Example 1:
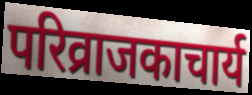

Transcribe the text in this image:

परिव्राजकाचार्य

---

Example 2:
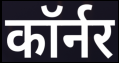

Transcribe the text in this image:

कॉर्नर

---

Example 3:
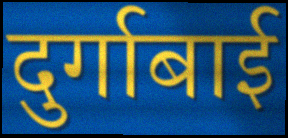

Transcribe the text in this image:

दुर्गाबाई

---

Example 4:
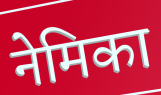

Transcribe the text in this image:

नेमिका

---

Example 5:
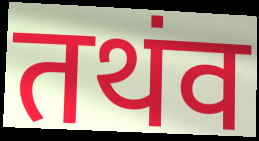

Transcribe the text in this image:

तथंव